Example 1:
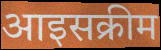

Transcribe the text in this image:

आइसक्रीम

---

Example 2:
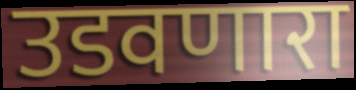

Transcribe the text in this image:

उडवणारा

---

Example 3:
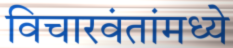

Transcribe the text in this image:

विचारवंतांमध्ये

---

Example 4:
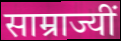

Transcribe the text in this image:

साम्राज्यीं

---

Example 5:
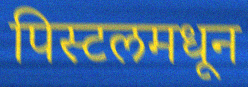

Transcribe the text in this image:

पिस्टलमधून